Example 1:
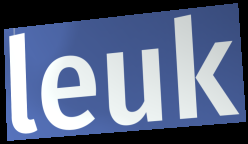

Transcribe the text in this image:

leuk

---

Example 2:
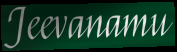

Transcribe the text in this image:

Jeevanamu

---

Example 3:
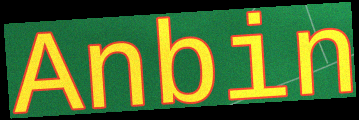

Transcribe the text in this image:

Anbin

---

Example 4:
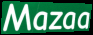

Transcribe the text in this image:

Mazaa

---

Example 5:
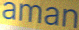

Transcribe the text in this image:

aman